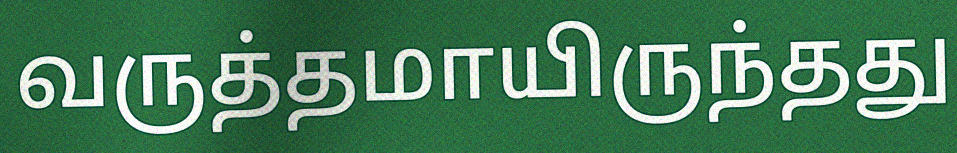
வருத்தமாயிருந்தது